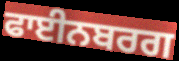
ਫਾਈਨਬਰਗ